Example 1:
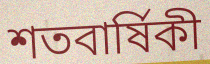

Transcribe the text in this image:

শতবাৰ্ষিকী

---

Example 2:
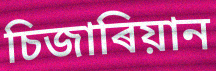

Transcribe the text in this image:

চিজাৰিয়ান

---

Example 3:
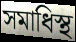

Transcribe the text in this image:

সমাধিস্থ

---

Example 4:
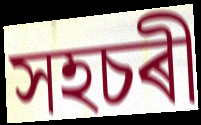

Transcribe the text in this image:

সহচৰী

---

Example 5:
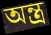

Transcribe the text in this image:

অন্ত্ৰ